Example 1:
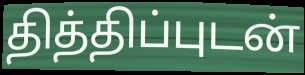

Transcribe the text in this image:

தித்திப்புடன்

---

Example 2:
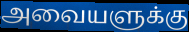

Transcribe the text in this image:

அவையளுக்கு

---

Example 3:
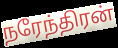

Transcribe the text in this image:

நரேந்திரன்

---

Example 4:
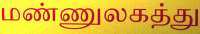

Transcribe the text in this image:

மண்ணுலகத்து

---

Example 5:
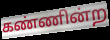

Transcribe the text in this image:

கண்ணின்ற